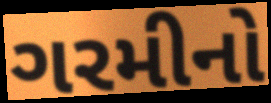
ગરમીનો